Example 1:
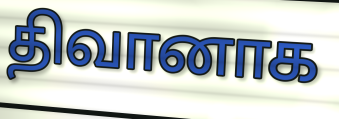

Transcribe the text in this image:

திவானாக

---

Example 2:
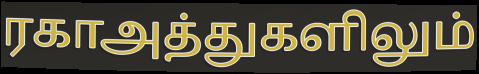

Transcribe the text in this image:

ரகாஅத்துகளிலும்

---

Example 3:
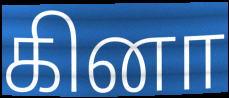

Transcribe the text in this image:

கினா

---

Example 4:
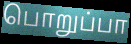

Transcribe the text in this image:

பொறுப்பா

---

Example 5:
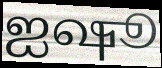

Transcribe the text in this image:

ஐஷூ